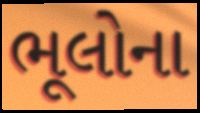
ભૂલોના